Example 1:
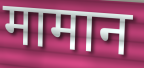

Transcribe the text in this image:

मामान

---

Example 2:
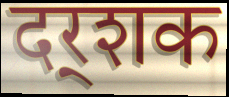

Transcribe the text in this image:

दर्शक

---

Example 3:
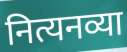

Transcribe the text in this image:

नित्यनव्या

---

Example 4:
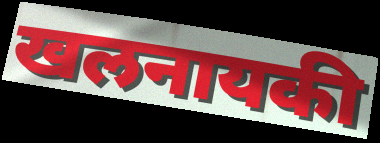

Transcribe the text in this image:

खलनायकी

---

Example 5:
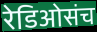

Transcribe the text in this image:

रेडिओसंच